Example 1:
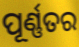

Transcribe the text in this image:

ପୂର୍ଣ୍ଣତର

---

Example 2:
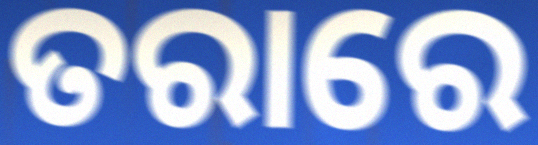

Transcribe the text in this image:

ତରାରେ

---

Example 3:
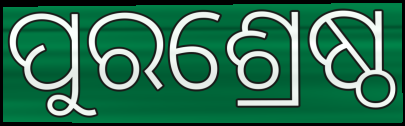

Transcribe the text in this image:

ପୁରଶ୍ରେଷ୍ଠ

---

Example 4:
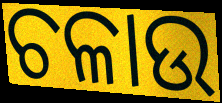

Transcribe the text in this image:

ଚଳାଉ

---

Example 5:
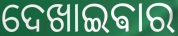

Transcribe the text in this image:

ଦେଖାଇଵାର